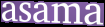
asama